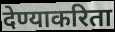
देण्याकरिता